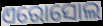
ଏରୋସୋଲ